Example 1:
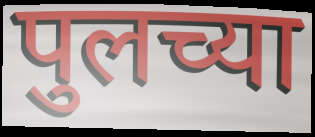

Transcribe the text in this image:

पुलच्या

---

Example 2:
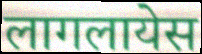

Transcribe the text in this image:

लागलायेस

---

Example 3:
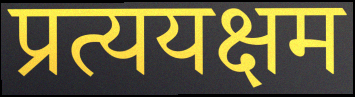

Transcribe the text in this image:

प्रत्ययक्षम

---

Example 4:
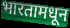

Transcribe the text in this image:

भारतामधून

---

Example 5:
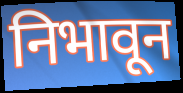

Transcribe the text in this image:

निभावून